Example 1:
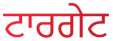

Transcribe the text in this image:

ਟਾਰਗੇਟ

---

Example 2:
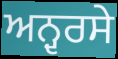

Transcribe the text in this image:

ਅਨ੍ਦਰਸੇ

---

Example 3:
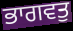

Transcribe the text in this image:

ਭਾਗਵਤੁ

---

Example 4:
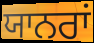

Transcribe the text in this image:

ਯਾਨਰਾਂ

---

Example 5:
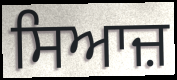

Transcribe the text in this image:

ਸਿਆਜ਼